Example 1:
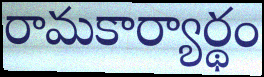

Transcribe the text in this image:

రామకార్యార్థం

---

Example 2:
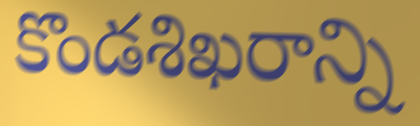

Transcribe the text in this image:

కొండశిఖరాన్ని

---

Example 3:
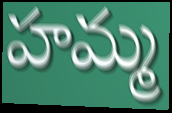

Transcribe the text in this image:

హమ్మ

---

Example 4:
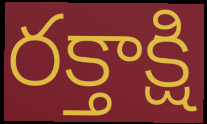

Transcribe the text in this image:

రక్తాక్షి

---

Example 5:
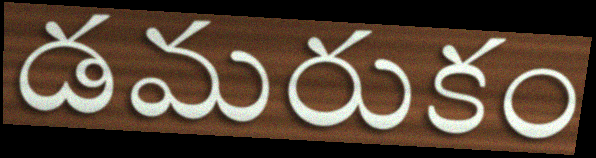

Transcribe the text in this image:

డమరుకం